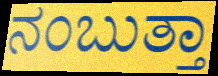
ನಂಬುತ್ತಾ